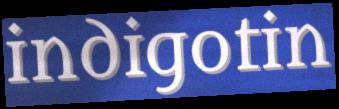
indigotin